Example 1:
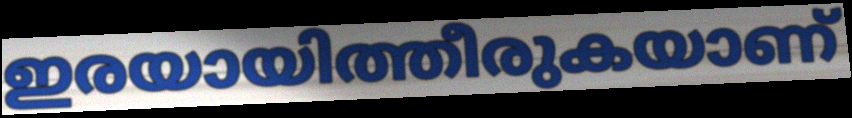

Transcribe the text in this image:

ഇരയായിത്തീരുകയാണ്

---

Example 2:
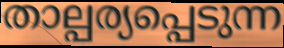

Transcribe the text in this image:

താല്പര്യപ്പെടുന്ന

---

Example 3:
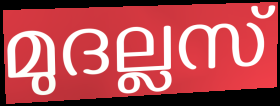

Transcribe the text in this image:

മുദല്ലസ്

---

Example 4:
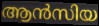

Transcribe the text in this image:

ആൻസിയ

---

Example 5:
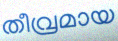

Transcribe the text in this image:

തീവ്രമായ